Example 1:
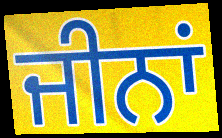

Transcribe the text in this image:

ਜੀਨਾਂ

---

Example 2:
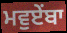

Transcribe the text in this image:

ਮਵੁਏਂਬਾ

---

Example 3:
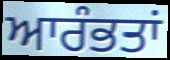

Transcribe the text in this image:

ਆਰੰਭਤਾਂ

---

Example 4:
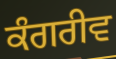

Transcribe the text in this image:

ਕੰਗਰੀਵ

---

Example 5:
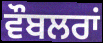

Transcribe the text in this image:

ਵੌਬਲਰਾਂ